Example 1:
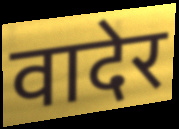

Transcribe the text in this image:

वादेर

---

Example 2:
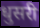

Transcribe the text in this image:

धुसरी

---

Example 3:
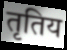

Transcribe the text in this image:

तृतिय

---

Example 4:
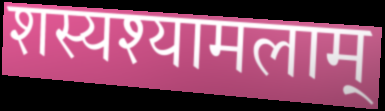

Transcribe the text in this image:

शस्यश्यामलाम्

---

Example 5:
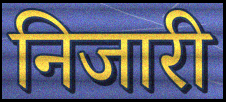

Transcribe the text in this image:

निजारी